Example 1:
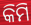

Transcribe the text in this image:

କିମି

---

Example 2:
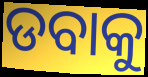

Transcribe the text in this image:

ଡବାକୁ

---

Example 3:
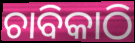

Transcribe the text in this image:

ଚାବିକାଠି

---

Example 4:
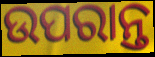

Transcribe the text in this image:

ଉପରାନ୍ତ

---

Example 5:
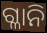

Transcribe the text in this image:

ଗ୍ଳାନି